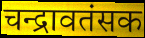
चन्द्रावतंसक